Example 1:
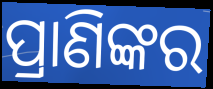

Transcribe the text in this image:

ପ୍ରାଣିଙ୍କର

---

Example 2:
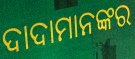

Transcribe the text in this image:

ଦାଦାମାନଙ୍କର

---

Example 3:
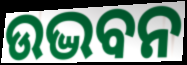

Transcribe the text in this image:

ଉଦ୍ଭବନ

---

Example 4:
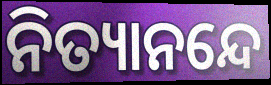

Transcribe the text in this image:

ନିତ୍ୟାନନ୍ଦେ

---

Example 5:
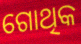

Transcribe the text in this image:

ଗୋଥିକ